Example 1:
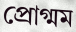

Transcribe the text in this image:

প্রোগ্মম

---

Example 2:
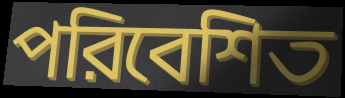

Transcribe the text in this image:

পরিবেশিত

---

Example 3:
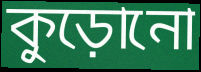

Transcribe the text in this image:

কুড়োনো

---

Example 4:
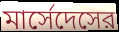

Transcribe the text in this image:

মার্সেদেসের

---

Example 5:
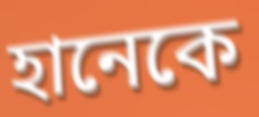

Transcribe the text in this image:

হানেকে